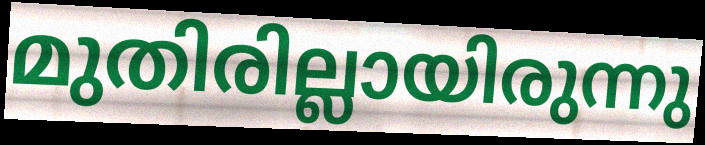
മുതിരില്ലായിരുന്നു